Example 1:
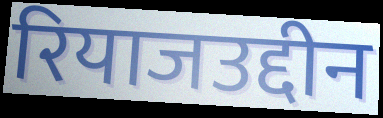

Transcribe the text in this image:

रियाजउद्दीन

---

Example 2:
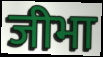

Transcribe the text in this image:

जीभा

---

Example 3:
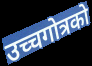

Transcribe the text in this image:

उच्चगोत्रको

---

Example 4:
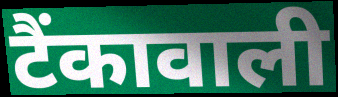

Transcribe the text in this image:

टैंकावाली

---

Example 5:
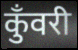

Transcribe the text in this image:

कुँवरी